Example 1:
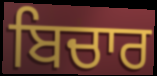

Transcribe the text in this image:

ਬਿਚਾਰ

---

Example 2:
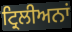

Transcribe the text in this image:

ਟ੍ਰਿਲੀਅਨਾਂ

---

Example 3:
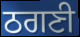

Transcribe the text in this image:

ਠਗਣੀ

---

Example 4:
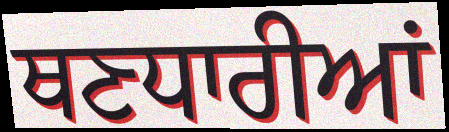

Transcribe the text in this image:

ਥਣਧਾਰੀਆਂ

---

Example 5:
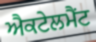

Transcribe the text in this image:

ਐਕਟੇਲਮੈਂਟ